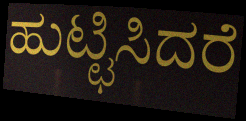
ಹುಟ್ಟಿಸಿದರೆ